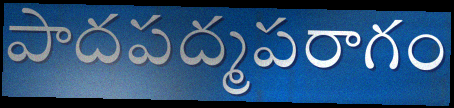
పాదపద్మపరాగం